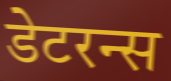
डेटरन्स